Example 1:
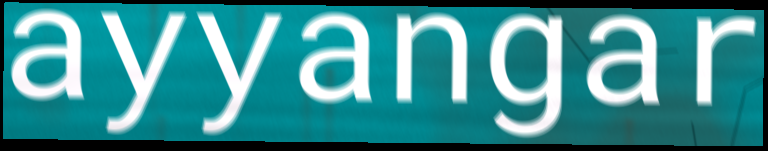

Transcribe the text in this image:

ayyangar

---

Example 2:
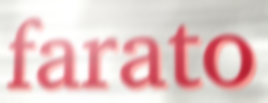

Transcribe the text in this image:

farato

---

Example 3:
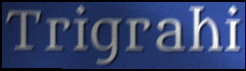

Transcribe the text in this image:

Trigrahi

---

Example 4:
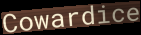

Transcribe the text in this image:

Cowardice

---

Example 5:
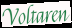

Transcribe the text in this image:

Voltaren